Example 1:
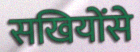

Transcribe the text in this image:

सखियोंसे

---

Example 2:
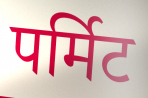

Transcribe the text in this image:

पर्मिट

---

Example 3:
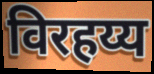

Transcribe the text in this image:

विरहय्य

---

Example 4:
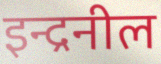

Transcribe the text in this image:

इन्द्रनील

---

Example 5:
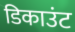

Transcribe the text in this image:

डिकाउंट